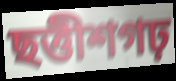
ছত্তীশগঢ়